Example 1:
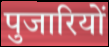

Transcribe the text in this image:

पुजारियों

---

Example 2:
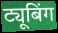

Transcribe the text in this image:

ट्यूबिंग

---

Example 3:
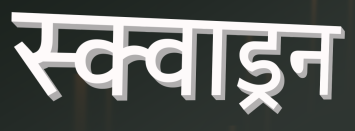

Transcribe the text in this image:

स्क्वाड्रन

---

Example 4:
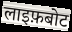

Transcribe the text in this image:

लाइफ़बोट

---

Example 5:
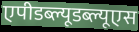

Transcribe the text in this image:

एपीडब्ल्यूडब्ल्यूएस